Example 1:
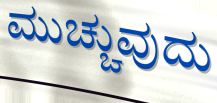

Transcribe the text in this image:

ಮುಚ್ಚುವುದು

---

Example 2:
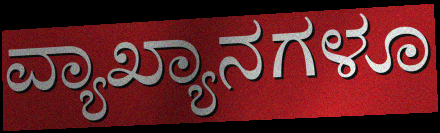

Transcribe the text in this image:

ವ್ಯಾಖ್ಯಾನಗಳೂ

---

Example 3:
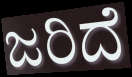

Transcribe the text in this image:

ಜರಿದೆ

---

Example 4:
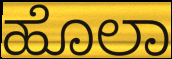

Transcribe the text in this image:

ಹೊಲಾ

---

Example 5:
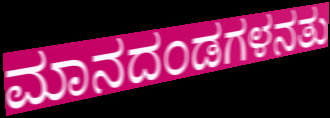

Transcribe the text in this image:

ಮಾನದಂಡಗಳನತು